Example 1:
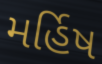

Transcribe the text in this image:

મર્હિષ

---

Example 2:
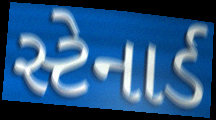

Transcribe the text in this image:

સ્ટેનાર્ડ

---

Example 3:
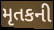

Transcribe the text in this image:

મૃતકની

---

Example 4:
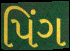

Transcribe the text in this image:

પિંગ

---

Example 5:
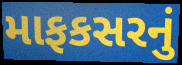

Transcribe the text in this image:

માફકસરનું